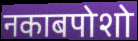
नकाबपोशो